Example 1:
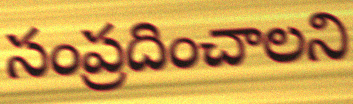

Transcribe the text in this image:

సంప్రదించాలని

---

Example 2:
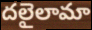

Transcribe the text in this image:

దలైలామా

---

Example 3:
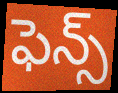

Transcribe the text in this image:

ఫెన్స్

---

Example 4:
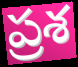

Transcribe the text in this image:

ప్రశ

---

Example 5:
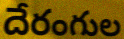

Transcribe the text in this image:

దేరంగుల